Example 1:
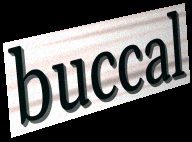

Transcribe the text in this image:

buccal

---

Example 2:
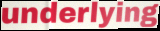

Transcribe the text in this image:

underlying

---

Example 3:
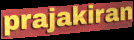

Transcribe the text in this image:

prajakiran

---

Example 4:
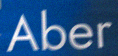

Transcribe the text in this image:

Aber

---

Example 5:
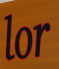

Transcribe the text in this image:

lor